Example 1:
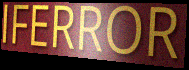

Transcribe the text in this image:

IFERROR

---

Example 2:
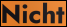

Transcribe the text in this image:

Nicht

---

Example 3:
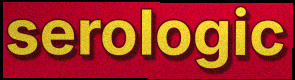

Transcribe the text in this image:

serologic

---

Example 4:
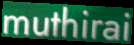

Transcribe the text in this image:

muthirai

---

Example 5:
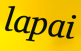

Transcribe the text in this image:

lapai